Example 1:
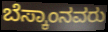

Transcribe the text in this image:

ಬೆಸ್ಕಾಂನವರು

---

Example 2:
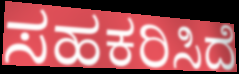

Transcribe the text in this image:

ಸಹಕರಿಸಿದೆ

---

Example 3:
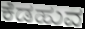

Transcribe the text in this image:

ಕೆಡಹುವ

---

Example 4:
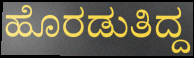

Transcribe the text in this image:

ಹೊರಡುತಿದ್ದ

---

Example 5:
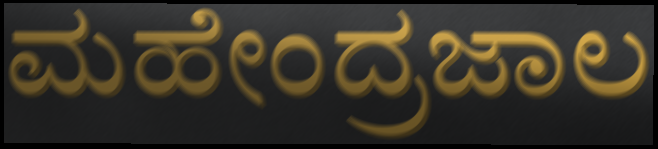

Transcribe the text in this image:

ಮಹೇಂದ್ರಜಾಲ